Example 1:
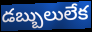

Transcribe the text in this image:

డబ్బులులేక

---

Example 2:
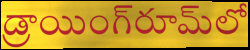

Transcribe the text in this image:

డ్రాయింగ్‌రూమ్‌లో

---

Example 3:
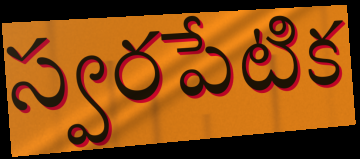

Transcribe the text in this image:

స్వరపేటిక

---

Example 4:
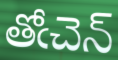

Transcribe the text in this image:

తోఁచెన్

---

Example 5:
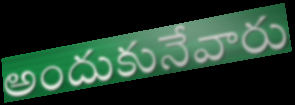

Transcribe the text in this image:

అందుకునేవారు